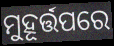
ମୁହୂର୍ତ୍ତପରେ